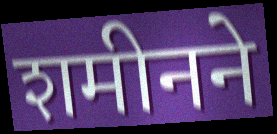
शमीनने